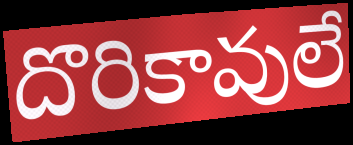
దొరికావులే